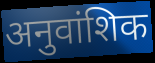
अनुवांशिक